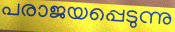
പരാജയപ്പെടുന്നു